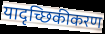
यादृच्छिकीकरण